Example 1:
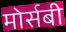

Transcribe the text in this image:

मोर्सबी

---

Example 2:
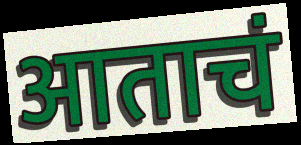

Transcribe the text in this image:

आताचं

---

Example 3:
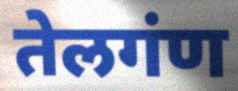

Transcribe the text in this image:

तेलगंण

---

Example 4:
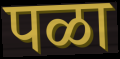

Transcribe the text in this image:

पळा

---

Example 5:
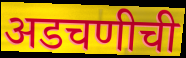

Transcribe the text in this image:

अडचणीची